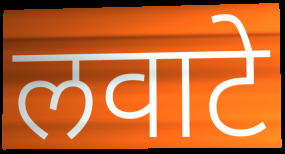
लवाटे